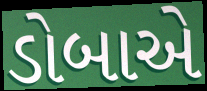
ડોબાએ